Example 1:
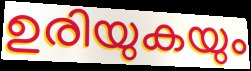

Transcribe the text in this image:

ഉരിയുകയും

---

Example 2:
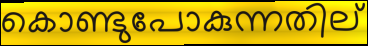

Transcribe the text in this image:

കൊണ്ടുപോകുന്നതില്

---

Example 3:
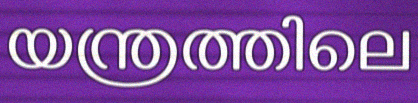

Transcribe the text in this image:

യന്ത്രത്തിലെ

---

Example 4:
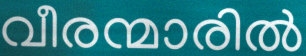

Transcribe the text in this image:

വീരന്മാരിൽ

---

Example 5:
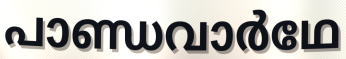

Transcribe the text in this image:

പാണ്ഡവാർഥേ